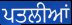
ਪਤਲੀਆਂ